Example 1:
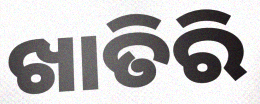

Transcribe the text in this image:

ଖାତିରି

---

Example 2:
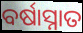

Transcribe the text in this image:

ବର୍ଷାସ୍ନାତ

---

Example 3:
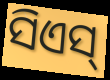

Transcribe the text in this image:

ସିଏସ୍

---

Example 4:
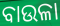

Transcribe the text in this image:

ବାଉଳା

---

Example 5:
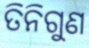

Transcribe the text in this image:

ତିନିଗୁଣ